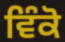
ਵਿੰਕੋ